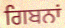
ਗਿਬਨਾਂ